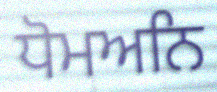
ਧੋਮਅਨਿ